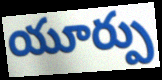
యూర్పు